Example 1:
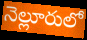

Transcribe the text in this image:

నెల్లూరులో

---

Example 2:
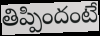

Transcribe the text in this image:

తిప్పిందంటే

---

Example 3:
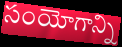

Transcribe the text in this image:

సంయోగాన్ని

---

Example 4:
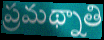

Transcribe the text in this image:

ప్రమథ్నాతి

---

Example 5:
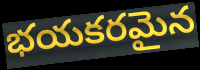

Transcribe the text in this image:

భయకరమైన